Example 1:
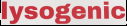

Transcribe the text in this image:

lysogenic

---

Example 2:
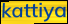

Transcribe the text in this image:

kattiya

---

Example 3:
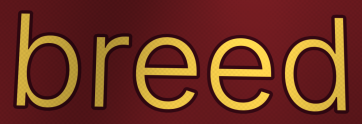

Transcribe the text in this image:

breed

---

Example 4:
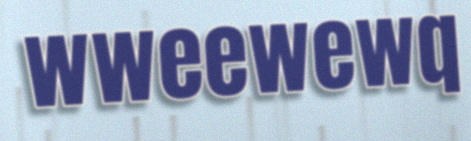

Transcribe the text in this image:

wweewewq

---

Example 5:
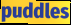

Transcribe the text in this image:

puddles